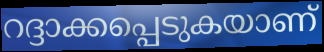
റദ്ദാക്കപ്പെടുകയാണ്